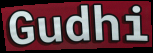
Gudhi